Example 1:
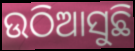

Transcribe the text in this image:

ଉଠିଆସୁଛି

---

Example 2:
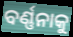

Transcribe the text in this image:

ବର୍ଣ୍ଣନାକୁ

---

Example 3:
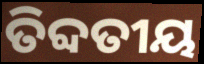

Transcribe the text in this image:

ତିବ୍ଦତୀୟ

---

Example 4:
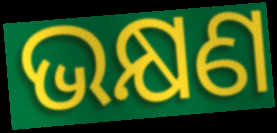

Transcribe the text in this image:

ଭକ୍ଷଣ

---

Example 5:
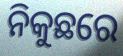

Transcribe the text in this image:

ନିକୁଛରେ